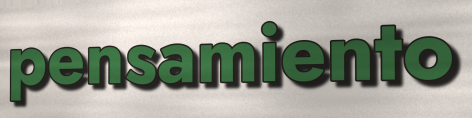
pensamiento